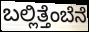
ಬಲ್ಲಿತ್ತೆಂಬೆನೆ